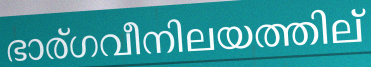
ഭാര്ഗവീനിലയത്തില്